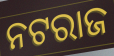
ନଟରାଜ